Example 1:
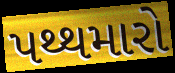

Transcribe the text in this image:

પથ્થમારો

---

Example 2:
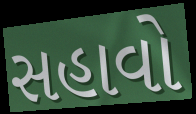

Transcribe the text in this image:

સહાવો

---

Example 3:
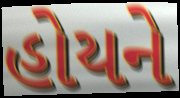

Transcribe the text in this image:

હોયને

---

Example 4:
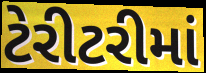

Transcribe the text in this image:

ટેરીટરીમાં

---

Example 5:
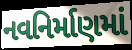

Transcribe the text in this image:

નવનિર્માણમાં